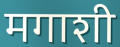
मगाशी